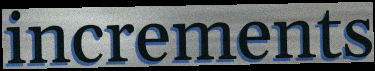
increments